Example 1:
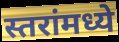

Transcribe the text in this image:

स्तरांमध्ये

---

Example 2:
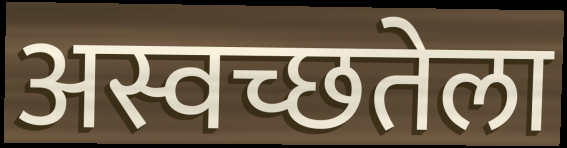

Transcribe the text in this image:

अस्वच्छतेला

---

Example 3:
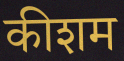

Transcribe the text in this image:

कीशम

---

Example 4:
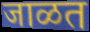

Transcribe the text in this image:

जाळत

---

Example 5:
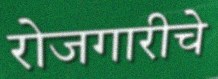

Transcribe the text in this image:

रोजगारीचे